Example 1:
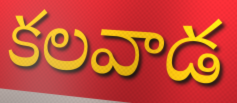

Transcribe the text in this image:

కలవాడ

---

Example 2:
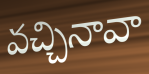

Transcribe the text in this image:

వచ్చినావా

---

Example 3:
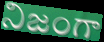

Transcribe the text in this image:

నిజంగా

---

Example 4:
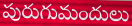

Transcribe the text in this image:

పురుగుమందులు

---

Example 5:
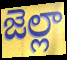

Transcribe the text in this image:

జెల్లా